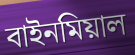
বাইনমিয়াল